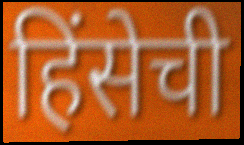
हिंसेची